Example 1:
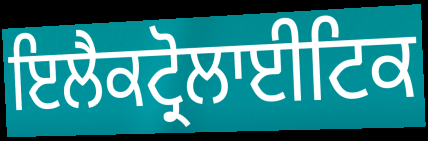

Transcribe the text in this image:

ਇਲੈਕਟ੍ਰੋਲਾਈਟਿਕ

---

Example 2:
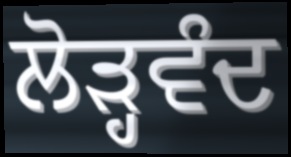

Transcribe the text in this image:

ਲੋੜ੍ਹਵੰਦ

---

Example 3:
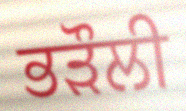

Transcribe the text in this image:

ਭੜੌਲੀ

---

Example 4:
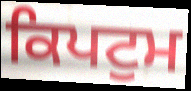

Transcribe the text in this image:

ਕਿਪਟੁਮ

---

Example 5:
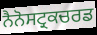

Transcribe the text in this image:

ਨੈਨੋਸਟ੍ਰਕਚਰਡ